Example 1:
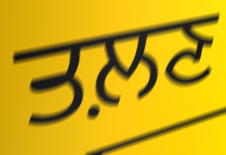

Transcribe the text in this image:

ਤਲ਼ਣ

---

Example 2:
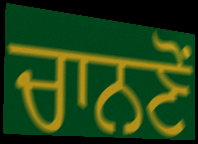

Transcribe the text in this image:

ਚਾਨਣੋਂ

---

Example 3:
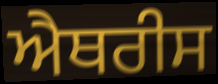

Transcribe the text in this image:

ਐਥਰੀਸ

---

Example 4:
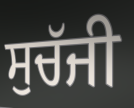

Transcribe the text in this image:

ਸੁਚੱਜੀ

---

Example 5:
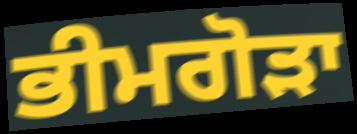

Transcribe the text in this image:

ਭੀਮਗੋੜਾ